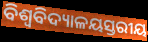
ବିଶ୍ଵବିଦ୍ୟାଳୟସ୍ତରୀୟ